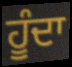
ਹੂੰਦਾ